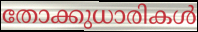
തോക്കുധാരികൾ